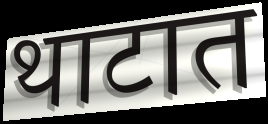
थाटात